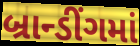
બ્રાન્ડીંગમાં